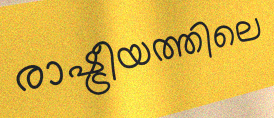
രാഷ്ട്രീയത്തിലെ